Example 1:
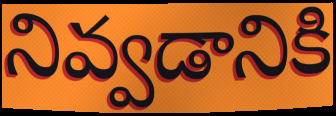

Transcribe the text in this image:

నివ్వడానికి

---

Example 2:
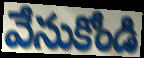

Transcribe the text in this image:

వేసుకోండి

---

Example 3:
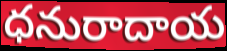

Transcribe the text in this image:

ధనురాదాయ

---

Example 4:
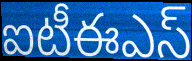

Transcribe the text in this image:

ఐటీఈఎస్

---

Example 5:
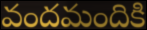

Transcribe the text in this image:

వందమందికి